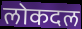
लोकदल